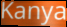
Kanya